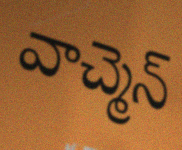
వాచ్మెన్